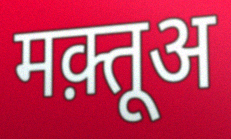
मक़्तूअ